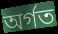
অৰ্গত